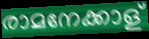
രാമനേക്കാള്